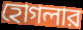
হোগলার